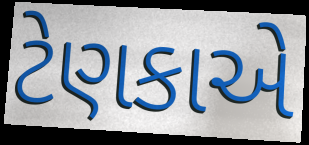
ટેણકાએ